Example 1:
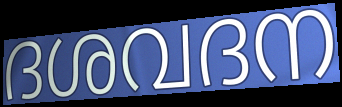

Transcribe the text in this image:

ദശവദന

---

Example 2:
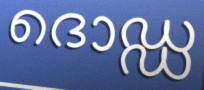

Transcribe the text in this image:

ദൊഡ്ഡ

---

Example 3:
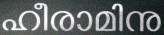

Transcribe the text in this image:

ഹീരാമിനു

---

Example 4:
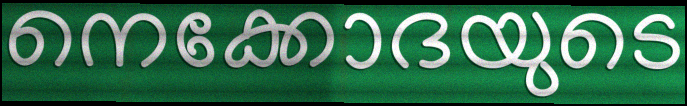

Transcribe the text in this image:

നെക്കോദയുടെ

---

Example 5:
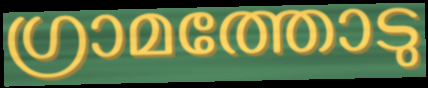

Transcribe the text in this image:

ഗ്രാമത്തോടു